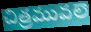
చిత్రమువలె